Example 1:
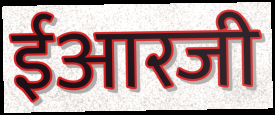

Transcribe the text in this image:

ईआरजी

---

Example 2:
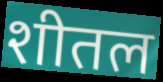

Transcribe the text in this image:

शीतल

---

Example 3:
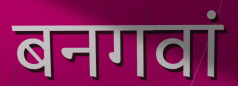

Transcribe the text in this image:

बनगवां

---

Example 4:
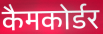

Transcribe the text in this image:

कैमकोर्डर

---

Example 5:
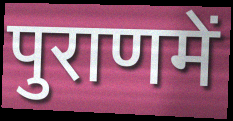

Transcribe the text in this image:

पुराणमें